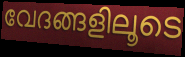
വേദങ്ങളിലൂടെ